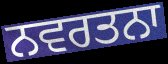
ਨਵਰਤਨਾ